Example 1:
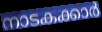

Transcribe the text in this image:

നാടകക്കാർ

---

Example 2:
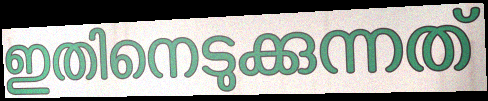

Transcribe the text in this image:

ഇതിനെടുക്കുന്നത്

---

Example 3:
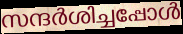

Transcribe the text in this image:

സന്ദർശിച്ചപ്പോൾ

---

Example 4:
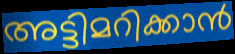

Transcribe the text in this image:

അട്ടിമറിക്കാൻ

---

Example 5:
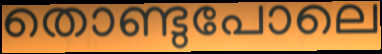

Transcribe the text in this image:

തൊണ്ടുപോലെ